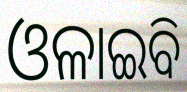
ଓଳାଇବି